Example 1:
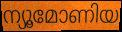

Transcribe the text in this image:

ന്യൂമോണിയ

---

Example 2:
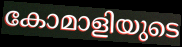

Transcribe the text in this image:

കോമാളിയുടെ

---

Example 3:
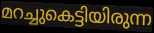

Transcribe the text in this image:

മറച്ചുകെട്ടിയിരുന്ന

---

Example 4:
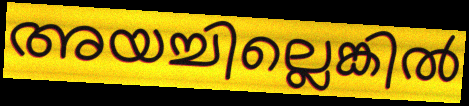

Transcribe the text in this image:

അയച്ചില്ലെങ്കിൽ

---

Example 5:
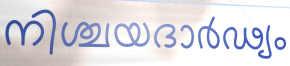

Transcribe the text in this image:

നിശ്ചയദാർഢ്യം